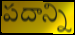
పదాన్ని